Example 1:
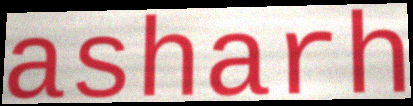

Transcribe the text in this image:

asharh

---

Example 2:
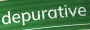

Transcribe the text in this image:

depurative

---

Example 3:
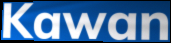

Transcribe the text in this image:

Kawan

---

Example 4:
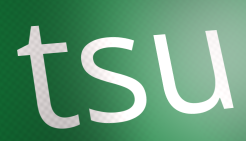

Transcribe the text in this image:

tsu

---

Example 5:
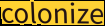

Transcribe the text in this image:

colonize